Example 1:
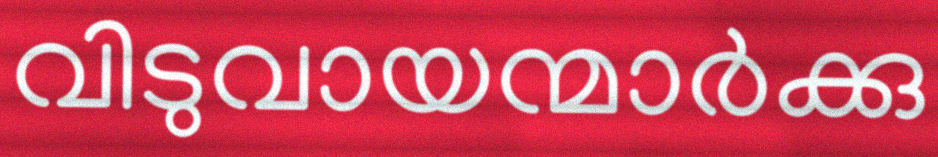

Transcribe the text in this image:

വിടുവായന്മാർക്കു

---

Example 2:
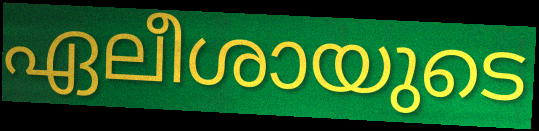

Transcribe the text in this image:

ഏലീശായുടെ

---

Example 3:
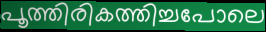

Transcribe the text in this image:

പൂത്തിരികത്തിച്ചപോലെ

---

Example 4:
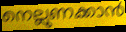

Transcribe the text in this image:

നെല്ലുണക്കാൻ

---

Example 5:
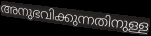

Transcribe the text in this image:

അനുഭവിക്കുന്നതിനുള്ള